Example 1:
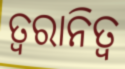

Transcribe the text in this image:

ତ୍ୱରାନିତ୍ଵ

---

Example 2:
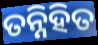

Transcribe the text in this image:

ତନ୍ନିହିତ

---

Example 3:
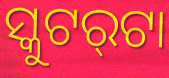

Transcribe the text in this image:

ସ୍କୁଟର୍‌ଟା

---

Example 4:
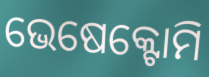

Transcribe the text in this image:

ଭେଷେକ୍ଟୋମି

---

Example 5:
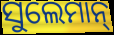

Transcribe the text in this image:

ସୁଲେମାନ୍